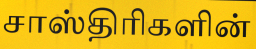
சாஸ்திரிகளின்